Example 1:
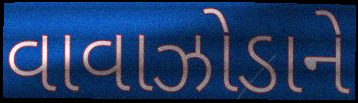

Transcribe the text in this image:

વાવાઝોડાને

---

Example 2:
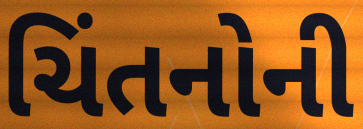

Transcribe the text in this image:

ચિંતનોની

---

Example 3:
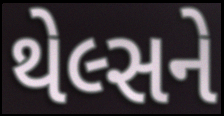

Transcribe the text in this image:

થેલ્સને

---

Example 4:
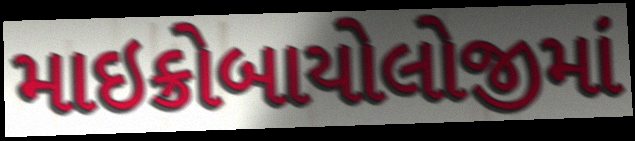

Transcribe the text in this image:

માઇક્રોબાયોલોજીમાં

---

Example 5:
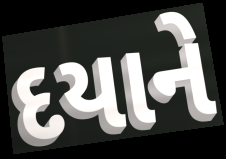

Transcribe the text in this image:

દયાને